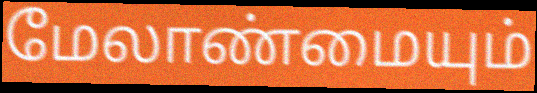
மேலாண்மையும்